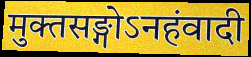
मुक्तसङ्गोऽनहंवादी